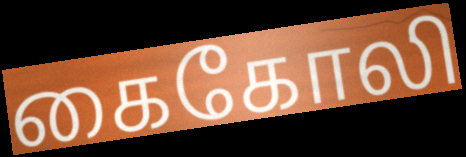
கைகோலி